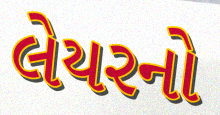
લેયરનો